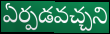
ఏర్పడవచ్చని